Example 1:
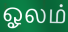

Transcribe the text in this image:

ஓலம்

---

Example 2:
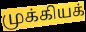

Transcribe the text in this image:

முக்கியக்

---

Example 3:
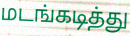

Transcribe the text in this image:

மடங்கடித்து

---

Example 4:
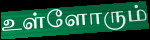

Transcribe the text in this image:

உள்ளோரும்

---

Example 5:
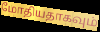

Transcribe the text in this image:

மோதியதாகவும்